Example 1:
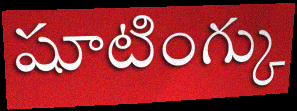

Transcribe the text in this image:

షూటింగ్కు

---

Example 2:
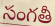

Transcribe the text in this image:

సంగతీ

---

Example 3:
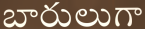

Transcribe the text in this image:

బారులుగా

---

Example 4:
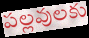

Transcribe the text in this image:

పల్లవులకు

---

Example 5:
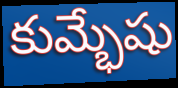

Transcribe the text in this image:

కుమ్భేషు